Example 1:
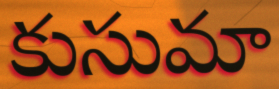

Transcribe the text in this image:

కుసుమా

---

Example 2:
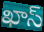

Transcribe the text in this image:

ఖాస్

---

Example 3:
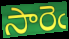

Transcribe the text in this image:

సారెఁ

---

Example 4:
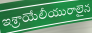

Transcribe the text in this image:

ఇశ్రాయేలీయురాలైన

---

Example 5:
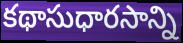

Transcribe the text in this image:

కథాసుధారసాన్ని